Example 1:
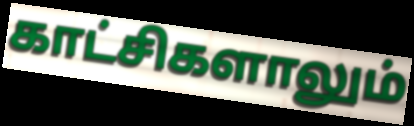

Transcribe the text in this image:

காட்சிகளாலும்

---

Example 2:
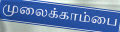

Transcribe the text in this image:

முலைக்காம்பை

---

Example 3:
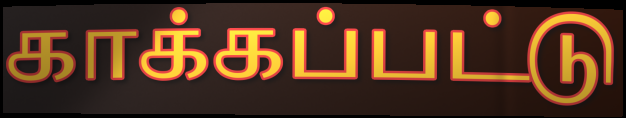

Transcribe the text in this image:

காக்கப்பட்டு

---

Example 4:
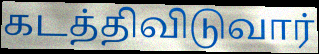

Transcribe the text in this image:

கடத்திவிடுவார்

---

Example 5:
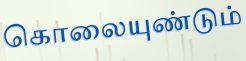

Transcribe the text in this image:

கொலையுண்டும்